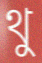
থু